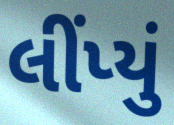
લીંપ્યું